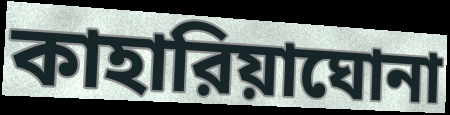
কাহারিয়াঘোনা